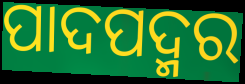
ପାଦପଦ୍ମର